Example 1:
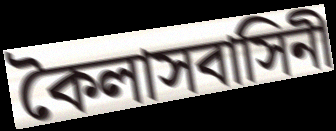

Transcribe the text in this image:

কৈলাসবাসিনী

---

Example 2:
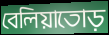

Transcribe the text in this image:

বেলিয়াতোড়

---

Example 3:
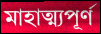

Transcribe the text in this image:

মাহাত্ম্যপূর্ণ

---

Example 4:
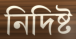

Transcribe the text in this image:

নিদিষ্ট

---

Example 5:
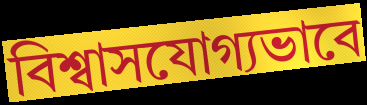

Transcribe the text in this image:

বিশ্বাসযোগ্যভাবে